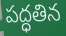
పద్ధతిన